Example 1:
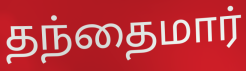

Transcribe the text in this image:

தந்தைமார்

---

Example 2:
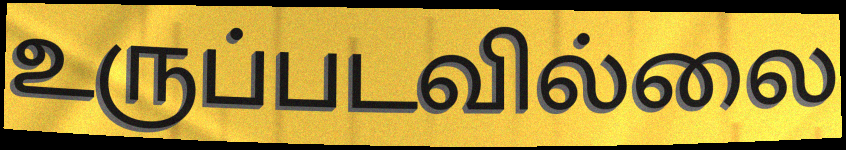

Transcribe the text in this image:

உருப்படவில்லை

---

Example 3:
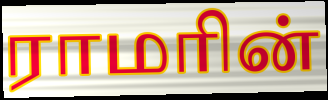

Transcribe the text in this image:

ராமரின்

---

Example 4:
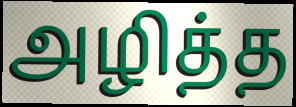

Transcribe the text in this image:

அழித்த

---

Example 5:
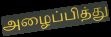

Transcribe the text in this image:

அழைப்பித்து